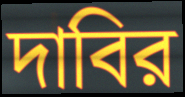
দাবির